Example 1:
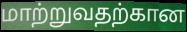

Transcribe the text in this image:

மாற்றுவதற்கான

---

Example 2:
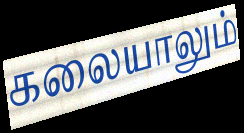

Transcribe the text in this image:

கலையாலும்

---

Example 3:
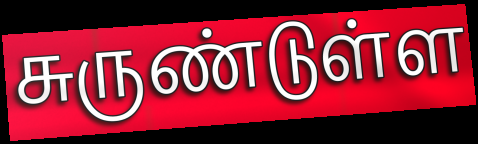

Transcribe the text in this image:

சுருண்டுள்ள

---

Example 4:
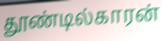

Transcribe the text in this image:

தூண்டில்காரன்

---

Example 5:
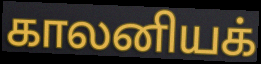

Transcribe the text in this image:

காலனியக்